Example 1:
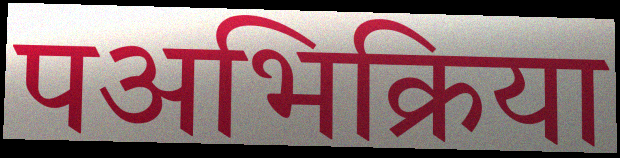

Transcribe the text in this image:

पअभिक्रिया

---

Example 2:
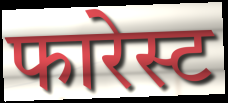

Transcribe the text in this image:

फारेस्ट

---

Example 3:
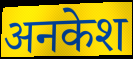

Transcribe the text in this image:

अनकेश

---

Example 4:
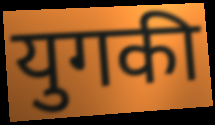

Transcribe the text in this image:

युगकी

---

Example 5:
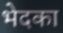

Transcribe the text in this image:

भेदका